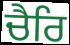
ਚੈਰਿ